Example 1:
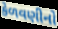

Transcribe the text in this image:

કેળવણીનો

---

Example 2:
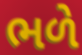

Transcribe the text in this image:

ભળે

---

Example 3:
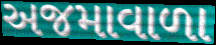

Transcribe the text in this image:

અજમાવાળા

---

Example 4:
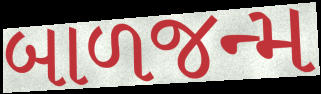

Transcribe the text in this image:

બાળજન્મ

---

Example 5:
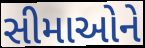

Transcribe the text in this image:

સીમાઓને